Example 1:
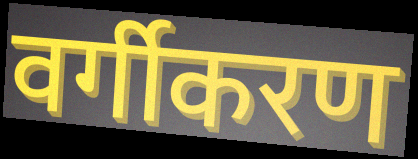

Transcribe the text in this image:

वर्गीकरण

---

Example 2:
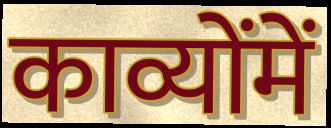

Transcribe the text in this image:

काव्योंमें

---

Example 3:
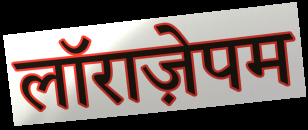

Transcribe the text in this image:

लॉराज़ेपम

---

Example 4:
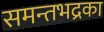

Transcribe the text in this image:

समन्तभद्रका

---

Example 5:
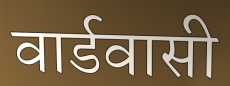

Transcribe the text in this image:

वार्डवासी